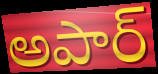
అపార్